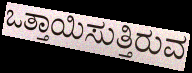
ಒತ್ತಾಯಿಸುತ್ತಿರುವ